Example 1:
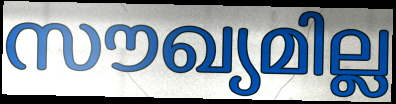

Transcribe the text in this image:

സൗഖ്യമില്ല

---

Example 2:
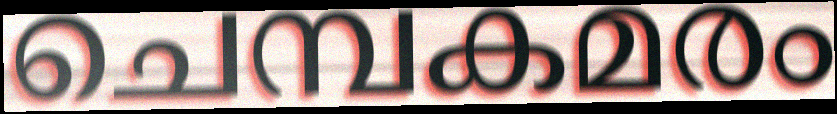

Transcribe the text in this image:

ചെമ്പകമരം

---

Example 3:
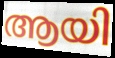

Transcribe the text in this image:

ആയി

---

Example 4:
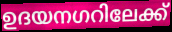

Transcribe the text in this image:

ഉദയനഗറിലേക്ക്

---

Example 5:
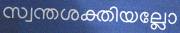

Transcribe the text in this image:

സ്വന്തശക്തിയല്ലോ